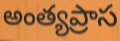
అంత్యప్రాస